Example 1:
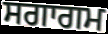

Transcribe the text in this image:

ਸਗਾਗਮ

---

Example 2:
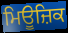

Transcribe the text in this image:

ਮਿਊਜ਼ਿਕ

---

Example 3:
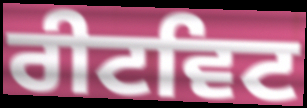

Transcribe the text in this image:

ਰੀਟਵਿਟ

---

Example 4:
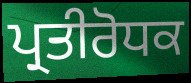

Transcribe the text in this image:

ਪ੍ਰਤੀਰੋਧਕ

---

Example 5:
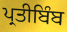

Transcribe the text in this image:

ਪ੍ਰਤੀਬਿੰਬ